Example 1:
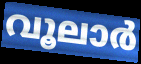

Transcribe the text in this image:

വൂലാർ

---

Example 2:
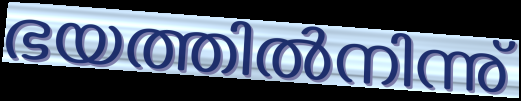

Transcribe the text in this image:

ഭയത്തിൽനിന്നു്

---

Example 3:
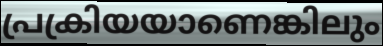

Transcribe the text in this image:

പ്രക്രിയയാണെങ്കിലും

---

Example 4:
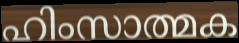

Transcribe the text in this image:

ഹിംസാത്മക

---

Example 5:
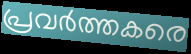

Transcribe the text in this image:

പ്രവർത്തകരെ